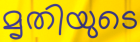
മൃതിയുടെ